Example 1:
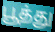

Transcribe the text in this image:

பூத்து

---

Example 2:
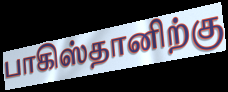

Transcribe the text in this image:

பாகிஸ்தானிற்கு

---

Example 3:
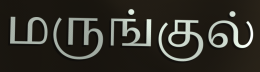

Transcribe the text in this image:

மருங்குல்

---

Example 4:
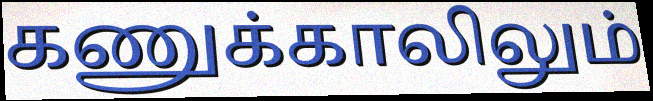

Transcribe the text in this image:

கணுக்காலிலும்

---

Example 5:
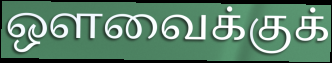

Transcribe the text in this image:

ஔவைக்குக்